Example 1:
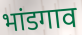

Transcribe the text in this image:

भांडगाव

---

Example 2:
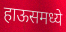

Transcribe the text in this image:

हाऊसमध्ये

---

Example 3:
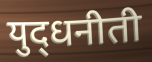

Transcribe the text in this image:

युद्धनीती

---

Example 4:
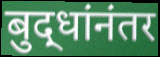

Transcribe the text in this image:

बुद्धांनंतर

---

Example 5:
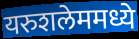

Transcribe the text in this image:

यरुशलेममध्ये